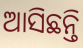
ଆସିଛନ୍ତି